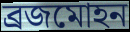
ব্ৰজমোহন